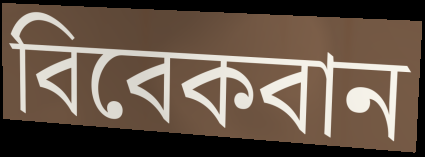
বিবেকবান